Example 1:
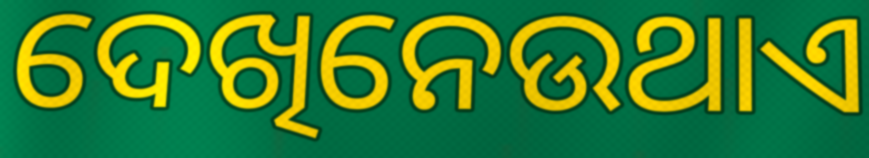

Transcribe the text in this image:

ଦେଖିନେଉଥାଏ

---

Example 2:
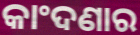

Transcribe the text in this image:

କାଂଦଣାର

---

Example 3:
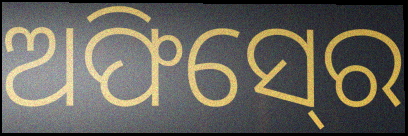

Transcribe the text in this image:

ଅଫିସ୍‍ରେ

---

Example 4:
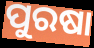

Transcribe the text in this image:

ପୁରଷା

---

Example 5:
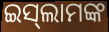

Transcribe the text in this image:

ଇସ୍‌ଲାମଙ୍କ